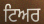
ਟਿਅਰ